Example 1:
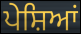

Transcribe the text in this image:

ਪੇਸ਼ਿਆਂ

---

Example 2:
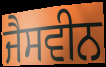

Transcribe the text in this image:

ਜੈਸਵੀਨ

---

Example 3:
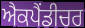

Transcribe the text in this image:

ਐਕਪੈਂਡੀਚਰ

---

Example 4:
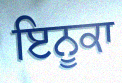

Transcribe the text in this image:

ਇਨੂਕਾ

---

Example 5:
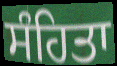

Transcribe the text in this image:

ਸੰਹਿਤਾ